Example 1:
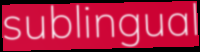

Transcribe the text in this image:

sublingual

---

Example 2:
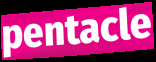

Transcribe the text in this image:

pentacle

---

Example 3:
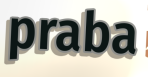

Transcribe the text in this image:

praba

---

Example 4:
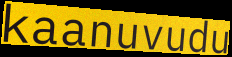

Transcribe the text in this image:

kaanuvudu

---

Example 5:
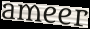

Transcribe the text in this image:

ameer